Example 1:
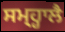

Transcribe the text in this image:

ਸਮ੍ਹ੍ਹਾਲੈ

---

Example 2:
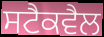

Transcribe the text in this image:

ਸਟੈਕਵੈਲ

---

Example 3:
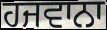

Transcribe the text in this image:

ਹਜਵਾਨਾ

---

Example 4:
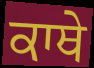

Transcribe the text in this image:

ਕਾਥੇ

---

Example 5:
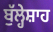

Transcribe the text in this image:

ਬੁੱਲ੍ਹੇਸ਼ਾਹ